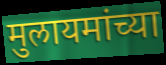
मुलायमांच्या